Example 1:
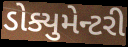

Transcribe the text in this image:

ડોક્યુમેન્ટરી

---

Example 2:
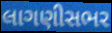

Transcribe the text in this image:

લાગણીસભર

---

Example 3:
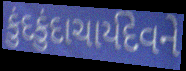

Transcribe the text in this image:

કુંદકુંદાચાર્યદેવને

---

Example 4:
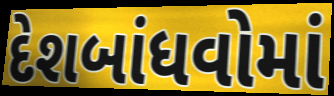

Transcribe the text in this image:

દેશબાંધવોમાં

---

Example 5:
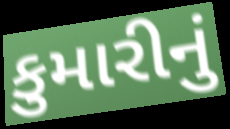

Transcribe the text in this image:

કુમારીનું